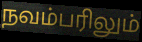
நவம்பரிலும்